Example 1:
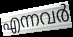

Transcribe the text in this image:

എന്നവർ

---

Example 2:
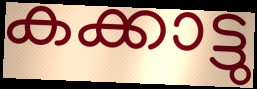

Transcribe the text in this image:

കക്കാട്ടു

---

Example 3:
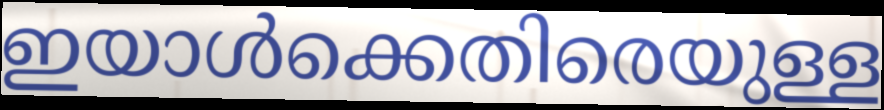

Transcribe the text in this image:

ഇയാൾക്കെതിരെയുള്ള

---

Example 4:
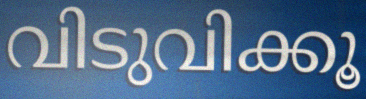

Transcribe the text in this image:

വിടുവിക്കൂ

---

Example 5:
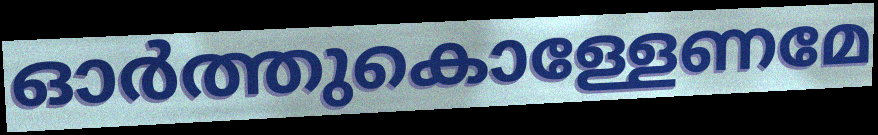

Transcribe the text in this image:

ഓർത്തുകൊള്ളേണമേ